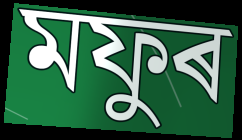
মফুৰ